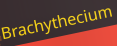
Brachythecium